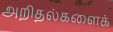
அறிதல்களைக்